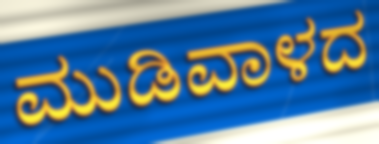
ಮುಡಿವಾಳದ